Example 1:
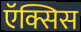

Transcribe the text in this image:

ऍक्सिस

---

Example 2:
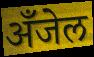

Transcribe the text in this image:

अँजेल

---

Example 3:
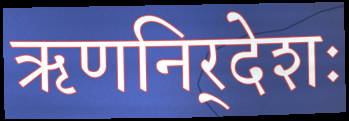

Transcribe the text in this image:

ऋणनिर्देशः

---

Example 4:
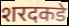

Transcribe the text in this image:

शरदकडे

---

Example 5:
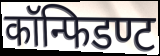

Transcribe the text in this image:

कॉन्फिडण्ट